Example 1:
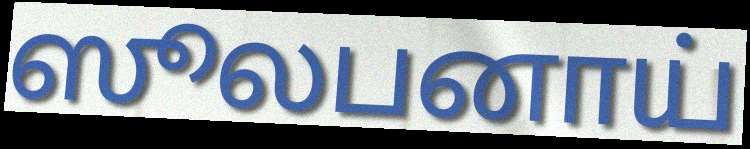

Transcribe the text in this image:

ஸூலபனாய்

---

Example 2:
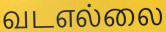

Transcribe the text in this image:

வடஎல்லை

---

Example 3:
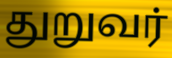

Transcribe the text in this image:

துறுவர்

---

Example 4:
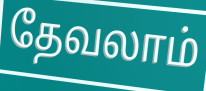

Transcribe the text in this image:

தேவலாம்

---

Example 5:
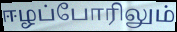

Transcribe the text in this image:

ஈழப்போரிலும்